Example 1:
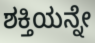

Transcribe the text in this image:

ಶಕ್ತಿಯನ್ನೇ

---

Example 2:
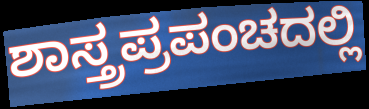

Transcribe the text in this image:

ಶಾಸ್ತ್ರಪ್ರಪಂಚದಲ್ಲಿ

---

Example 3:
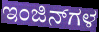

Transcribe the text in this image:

ಇಂಜಿನ್‌ಗಳ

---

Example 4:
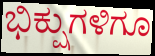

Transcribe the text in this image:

ಭಿಕ್ಷುಗಳಿಗೂ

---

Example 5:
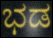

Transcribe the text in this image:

ಭಡ